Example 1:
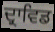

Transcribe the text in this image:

ਦ੍ਰਾਵਿਡ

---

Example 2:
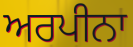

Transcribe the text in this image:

ਅਰਪੀਨਾ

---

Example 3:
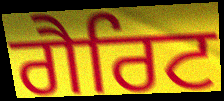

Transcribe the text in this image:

ਗੈਰਿਟ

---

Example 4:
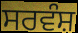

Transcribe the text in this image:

ਸਰਵੰਸ਼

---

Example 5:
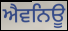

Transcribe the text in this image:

ਐਵਨਿਊ